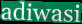
adiwasi